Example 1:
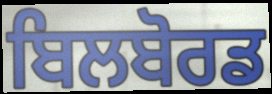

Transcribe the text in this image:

ਬਿਲਬੋਰਡ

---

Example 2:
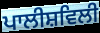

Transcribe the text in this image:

ਪਾਲੀਸ਼ਵਿਲੀ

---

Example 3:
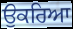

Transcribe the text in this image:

ਉਕਰਿਆ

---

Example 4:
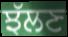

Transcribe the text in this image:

ਝੱਲਣ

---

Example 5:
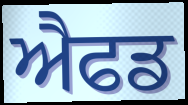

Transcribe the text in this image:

ਐਫਡ